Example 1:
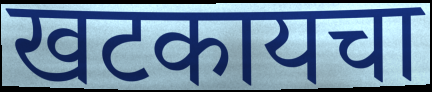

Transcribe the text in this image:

खटकायचा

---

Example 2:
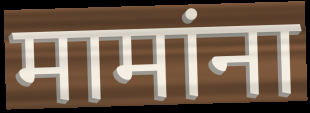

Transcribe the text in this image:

मामांना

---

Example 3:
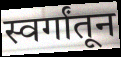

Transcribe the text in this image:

स्वर्गांतून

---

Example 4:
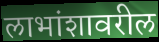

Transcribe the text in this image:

लाभांशावरील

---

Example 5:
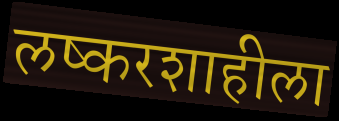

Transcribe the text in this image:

लष्करशाहीला